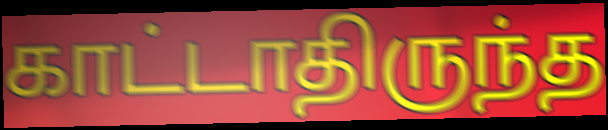
காட்டாதிருந்த